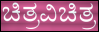
ಚಿತ್ರವಿಚಿತ್ರ